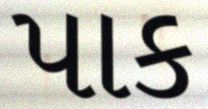
પાક